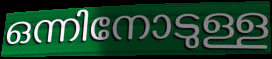
ഒന്നിനോടുള്ള